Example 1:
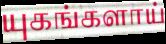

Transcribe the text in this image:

யுகங்களாய்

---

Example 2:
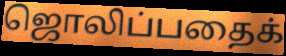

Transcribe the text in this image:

ஜொலிப்பதைக்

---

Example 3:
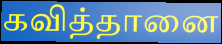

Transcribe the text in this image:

கவித்தானை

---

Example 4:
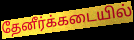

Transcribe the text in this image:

தேனீர்க்கடையில்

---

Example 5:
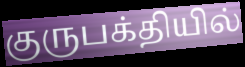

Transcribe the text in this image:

குருபக்தியில்